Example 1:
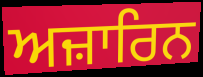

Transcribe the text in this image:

ਅਜ਼ਾਰਿਨ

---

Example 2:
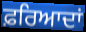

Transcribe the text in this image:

ਫ਼ਰਿਆਦਾਂ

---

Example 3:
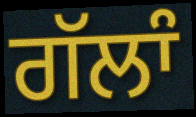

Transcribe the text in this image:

ਗੱਲਾੰ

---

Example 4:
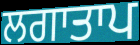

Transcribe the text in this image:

ਲਗਾਤਾਪ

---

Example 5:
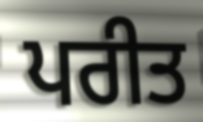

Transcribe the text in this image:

ਪਰੀਤ